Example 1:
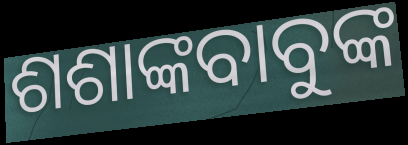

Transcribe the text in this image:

ଶଶାଙ୍କବାବୁଙ୍କ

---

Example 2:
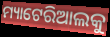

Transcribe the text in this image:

ମ୍ୟାଟେରିଆଲକୁ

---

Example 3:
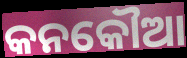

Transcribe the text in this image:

କନକୌଆ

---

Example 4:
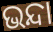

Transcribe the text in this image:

ଭନ୍ଦା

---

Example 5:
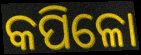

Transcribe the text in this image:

କପିଳୋ